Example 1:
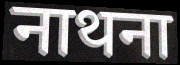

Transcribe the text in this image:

नाथना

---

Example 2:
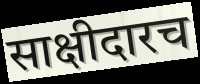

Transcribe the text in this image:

साक्षीदारच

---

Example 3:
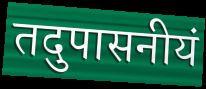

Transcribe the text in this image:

तदुपासनीयं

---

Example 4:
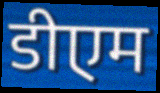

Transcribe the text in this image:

डीएम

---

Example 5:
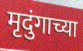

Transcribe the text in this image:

मृदुंगाच्या